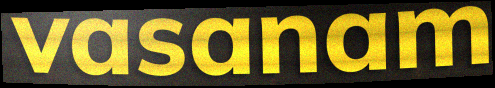
vasanam